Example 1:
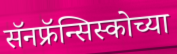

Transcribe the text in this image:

सॅनफ्रॅन्सिस्कोच्या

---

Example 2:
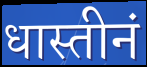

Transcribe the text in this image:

धास्तीनं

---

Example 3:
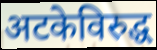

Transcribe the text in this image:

अटकेविरुद्ध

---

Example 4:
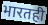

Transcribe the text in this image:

भारतही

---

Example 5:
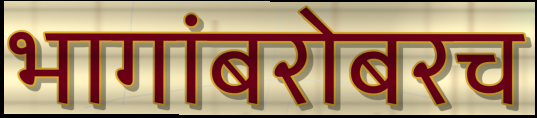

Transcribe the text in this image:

भागांबरोबरच